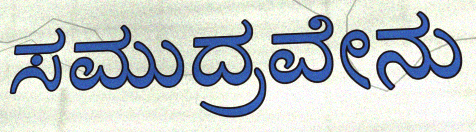
ಸಮುದ್ರವೇನು